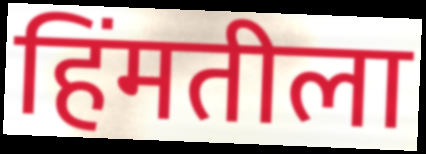
हिंमतीला